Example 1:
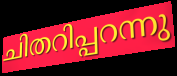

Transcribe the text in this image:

ചിതറിപ്പറന്നു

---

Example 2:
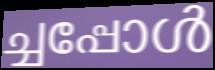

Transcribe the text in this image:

ച്ചപ്പോൾ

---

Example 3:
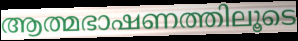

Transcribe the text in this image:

ആത്മഭാഷണത്തിലൂടെ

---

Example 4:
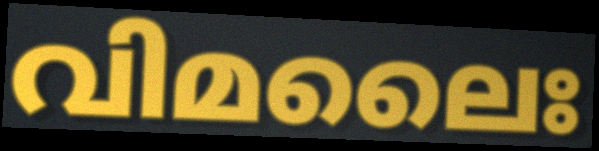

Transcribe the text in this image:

വിമലൈഃ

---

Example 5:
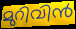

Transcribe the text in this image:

മുറിവിൻ